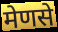
मेणसे